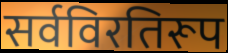
सर्वविरतिरूप